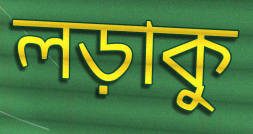
লড়াকু